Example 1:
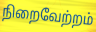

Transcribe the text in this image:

நிறைவேற்றம்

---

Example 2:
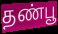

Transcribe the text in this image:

தண்பூ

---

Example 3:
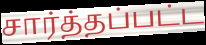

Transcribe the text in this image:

சார்த்தப்பட்ட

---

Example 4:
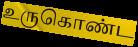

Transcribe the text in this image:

உருகொண்ட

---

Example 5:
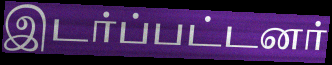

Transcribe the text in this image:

இடர்ப்பட்டனர்